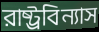
রাষ্ট্রবিন্যাস